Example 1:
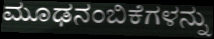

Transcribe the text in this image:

ಮೂಢನಂಬಿಕೆಗಳನ್ನು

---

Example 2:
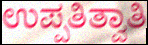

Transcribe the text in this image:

ಉಪ್ಪತಿತ್ವಾತಿ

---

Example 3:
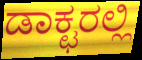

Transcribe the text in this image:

ಡಾಕ್ಟರಲ್ಲಿ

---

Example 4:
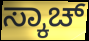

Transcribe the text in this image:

ಸ್ಕಾಚ್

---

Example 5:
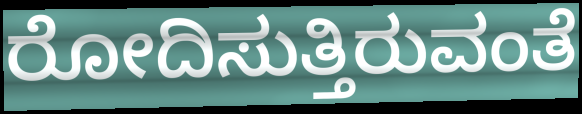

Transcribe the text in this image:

ರೋದಿಸುತ್ತಿರುವಂತೆ